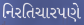
નિરતિચારપણે